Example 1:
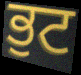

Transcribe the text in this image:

ਭੁਟ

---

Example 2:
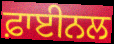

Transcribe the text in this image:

ਫ਼ਾਈਨਲ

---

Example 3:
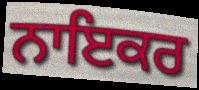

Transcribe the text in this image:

ਨਾਇਕਰ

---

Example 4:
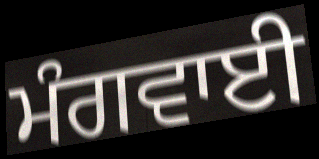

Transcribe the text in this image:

ਮੰਗਵਾਈ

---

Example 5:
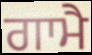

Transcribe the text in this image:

ਗਾਮੈ